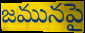
జమునపై